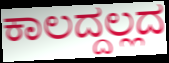
ಕಾಲದ್ದಲ್ಲದ